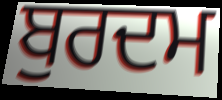
ਬੁਰਦਮ